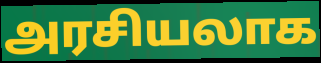
அரசியலாக